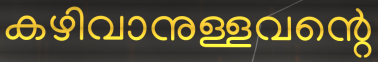
കഴിവാനുള്ളവന്റെ